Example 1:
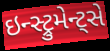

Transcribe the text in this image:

ઇન્સ્ટ્રુમેન્ટ્સે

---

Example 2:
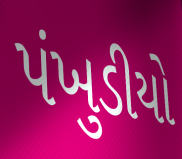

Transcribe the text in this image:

પંખુડીયો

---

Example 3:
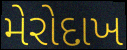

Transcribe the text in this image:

મેરોદાખ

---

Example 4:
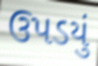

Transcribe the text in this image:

ઉપડયું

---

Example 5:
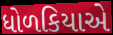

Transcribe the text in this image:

ધોળકિયાએ